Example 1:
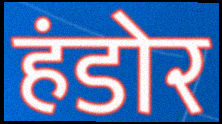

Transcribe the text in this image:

हंडोर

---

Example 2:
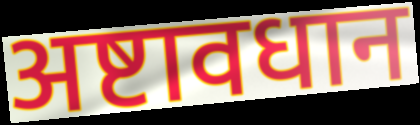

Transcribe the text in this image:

अष्टावधान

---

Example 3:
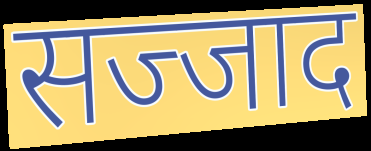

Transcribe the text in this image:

सज्जाद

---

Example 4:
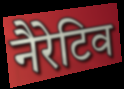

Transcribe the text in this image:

नैरेटिव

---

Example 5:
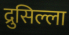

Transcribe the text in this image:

द्रुसिल्ला